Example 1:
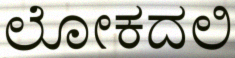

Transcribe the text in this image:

ಲೋಕದಲಿ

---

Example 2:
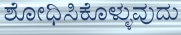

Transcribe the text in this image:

ಶೋಧಿಸಿಕೊಳ್ಳುವುದು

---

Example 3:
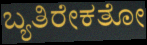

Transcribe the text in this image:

ಬ್ಯತಿರೇಕತೋ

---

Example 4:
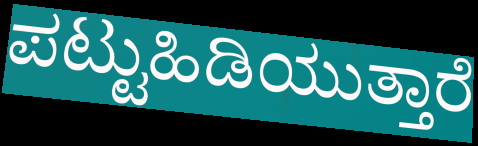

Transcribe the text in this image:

ಪಟ್ಟುಹಿಡಿಯುತ್ತಾರೆ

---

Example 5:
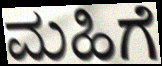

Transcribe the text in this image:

ಮಹಿಗೆ